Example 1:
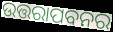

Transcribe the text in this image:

ଉତ୍ତରାପବନର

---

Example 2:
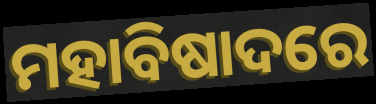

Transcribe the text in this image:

ମହାବିଷାଦରେ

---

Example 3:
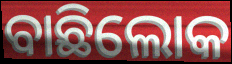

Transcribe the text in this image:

ବାଛିଲୋକ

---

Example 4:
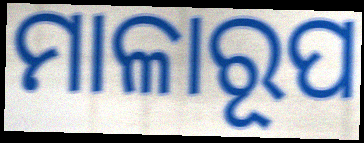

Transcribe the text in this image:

ମାଳାରୂପ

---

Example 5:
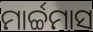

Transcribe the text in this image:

ମାର୍ଚ୍ଚମାସ